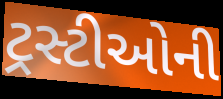
ટ્રસ્ટીઓની